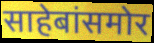
साहेबांसमोर